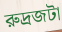
রুদ্রজটা